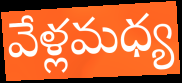
వేళ్లమధ్య